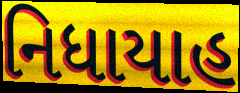
નિધાયાહ